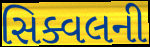
સિક્વલની